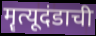
मॄत्यूदंडाची